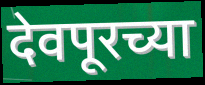
देवपूरच्या